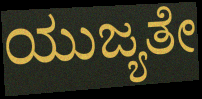
ಯುಜ್ಯತೇ